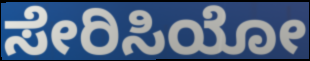
ಸೇರಿಸಿಯೋ